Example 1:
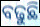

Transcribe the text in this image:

ବଢୁଛି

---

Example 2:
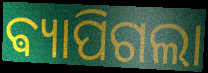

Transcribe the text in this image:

ଵ୍ୟାପିଗଲା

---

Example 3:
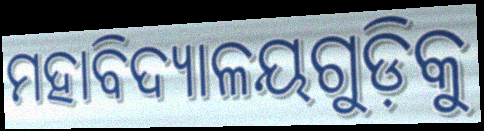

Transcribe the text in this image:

ମହାବିଦ୍ୟାଳୟଗୁଡ଼ିକୁ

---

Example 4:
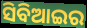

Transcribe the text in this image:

ସିବିଆଇର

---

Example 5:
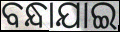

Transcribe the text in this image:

ବନ୍ଧାଯାଇ